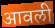
आवली